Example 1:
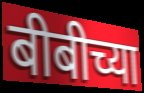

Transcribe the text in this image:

बीबीच्या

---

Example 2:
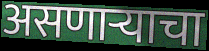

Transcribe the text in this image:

असणाऱ्याचा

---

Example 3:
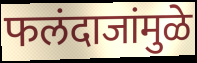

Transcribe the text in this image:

फलंदाजांमुळे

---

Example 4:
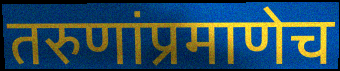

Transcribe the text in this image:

तरुणांप्रमाणेच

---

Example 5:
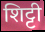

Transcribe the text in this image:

शिट्टी